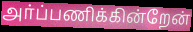
அர்ப்பணிக்கின்றேன்